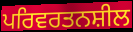
ਪਰਿਵਰਤਨਸ਼ੀਲ